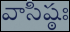
వాసిష్ఠః